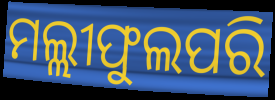
ମଲ୍ଲୀଫୁଲପରି